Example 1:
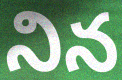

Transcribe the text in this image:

నిన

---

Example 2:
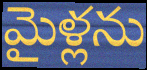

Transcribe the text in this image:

మైళ్లను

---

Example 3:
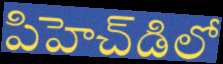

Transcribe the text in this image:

పిహెచ్‌డిలో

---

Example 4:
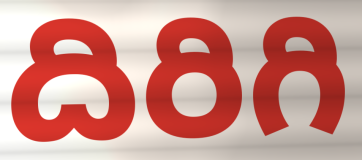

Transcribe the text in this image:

దిరిగి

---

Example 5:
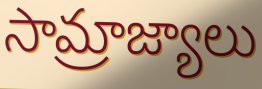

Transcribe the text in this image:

సామ్రాజ్యాలు